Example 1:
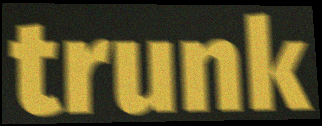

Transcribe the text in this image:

trunk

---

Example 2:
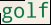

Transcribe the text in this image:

golf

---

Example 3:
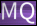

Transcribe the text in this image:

MQ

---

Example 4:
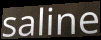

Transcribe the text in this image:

saline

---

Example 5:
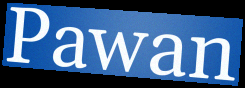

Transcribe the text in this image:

Pawan